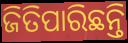
ଜିତିପାରିଛନ୍ତି